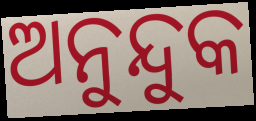
ଅନୁନ୍ଦୁକ